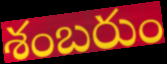
శంబరుం